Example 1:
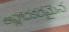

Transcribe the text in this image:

ఆహ్లాదకరమైన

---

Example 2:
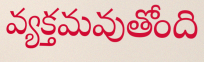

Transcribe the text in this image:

వ్యక్తమవుతోంది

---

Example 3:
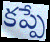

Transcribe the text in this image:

కప్పే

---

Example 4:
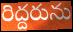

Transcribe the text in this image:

రిద్దరును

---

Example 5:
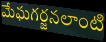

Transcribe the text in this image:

మేఘగర్జనలాంటి